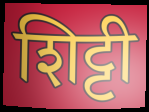
शिट्टी